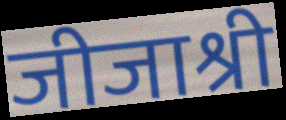
जीजाश्री